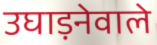
उघाड़नेवाले